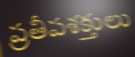
ప్రతీపశక్తులు